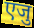
एजु